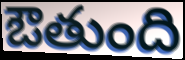
ఔతుంది